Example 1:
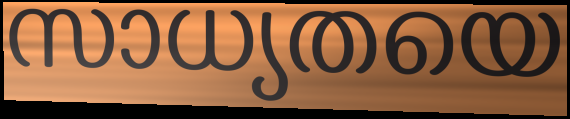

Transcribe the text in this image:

സാധ്യതയെ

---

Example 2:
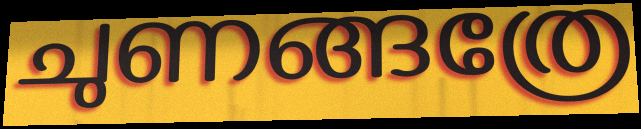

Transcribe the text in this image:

ചുണങ്ങത്രേ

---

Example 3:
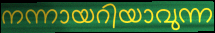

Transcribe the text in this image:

നന്നായറിയാവുന്ന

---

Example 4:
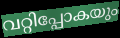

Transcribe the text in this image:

വറ്റിപ്പോകയും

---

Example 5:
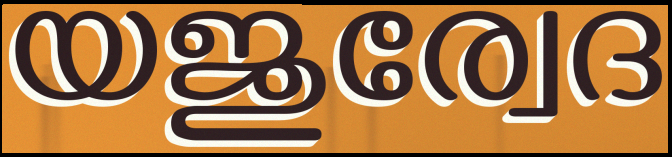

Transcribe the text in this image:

യജുര്വേദ